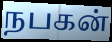
நபகன்